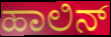
ಹಾಲಿನ್